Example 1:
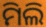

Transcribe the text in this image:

ମିଲି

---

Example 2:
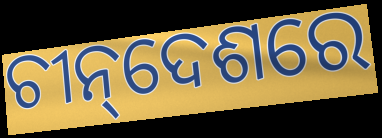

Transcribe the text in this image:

ଚୀନ୍‌ଦେଶରେ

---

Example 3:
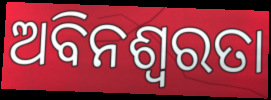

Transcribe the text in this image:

ଅବିନଶ୍ୱରତା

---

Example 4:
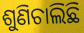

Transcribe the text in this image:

ଶୁଣିଚାଲିଛି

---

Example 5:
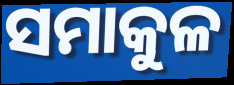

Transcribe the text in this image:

ସମାକୁଳ